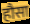
हौसा